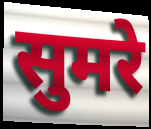
सुमरे